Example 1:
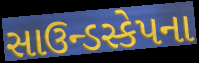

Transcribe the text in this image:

સાઉન્ડસ્કેપના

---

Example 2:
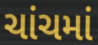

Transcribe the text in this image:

ચાંચમાં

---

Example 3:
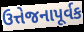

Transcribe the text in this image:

ઉત્તેજનાપૂર્વક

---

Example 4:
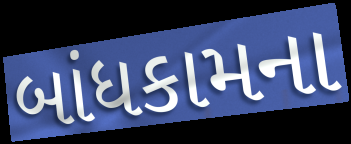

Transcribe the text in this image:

બાંધકામના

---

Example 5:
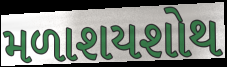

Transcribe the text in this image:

મળાશયશોથ